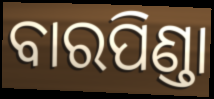
ବାରପିଣ୍ଡା